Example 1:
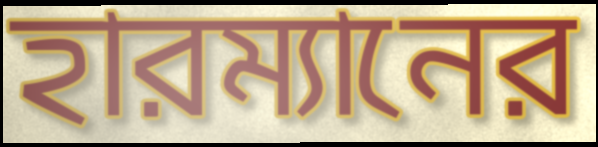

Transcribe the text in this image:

হারম্যানের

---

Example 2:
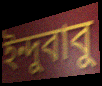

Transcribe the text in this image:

ইন্দুবাবু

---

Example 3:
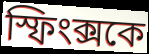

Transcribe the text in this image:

স্ফিংক্সকে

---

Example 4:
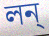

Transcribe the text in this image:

লন্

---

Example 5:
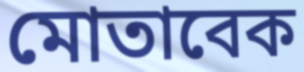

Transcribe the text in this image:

মোতাবেক